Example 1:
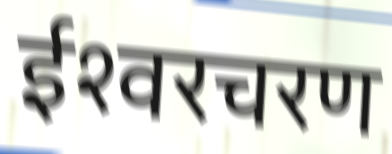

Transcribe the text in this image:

ईश्वरचरण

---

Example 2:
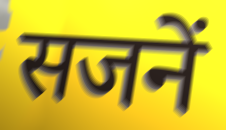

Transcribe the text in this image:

सजनें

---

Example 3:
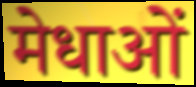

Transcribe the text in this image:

मेधाओं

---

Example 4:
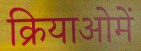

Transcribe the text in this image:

क्रियाओमें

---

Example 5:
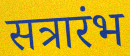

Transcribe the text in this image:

सत्रारंभ